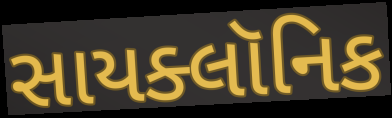
સાયક્લૉનિક